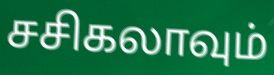
சசிகலாவும்